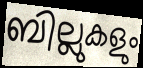
ബില്ലുകളും